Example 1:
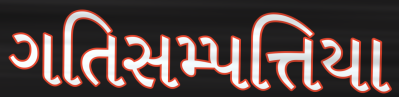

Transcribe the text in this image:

ગતિસમ્પત્તિયા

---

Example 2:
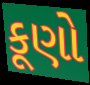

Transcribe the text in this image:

કૂણો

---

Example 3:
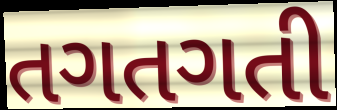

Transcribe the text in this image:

તગતગતી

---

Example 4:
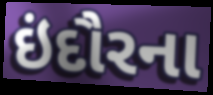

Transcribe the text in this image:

ઇંદૌરના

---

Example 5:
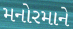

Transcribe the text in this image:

મનોરમાને